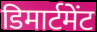
डिमार्टमेंट